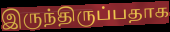
இருந்திருப்பதாக